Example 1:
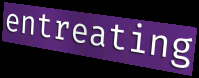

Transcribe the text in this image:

entreating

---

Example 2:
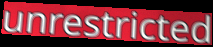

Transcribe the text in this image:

unrestricted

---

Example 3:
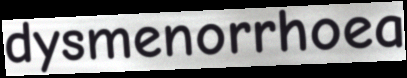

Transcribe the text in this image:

dysmenorrhoea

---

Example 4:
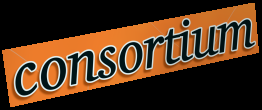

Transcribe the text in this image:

consortium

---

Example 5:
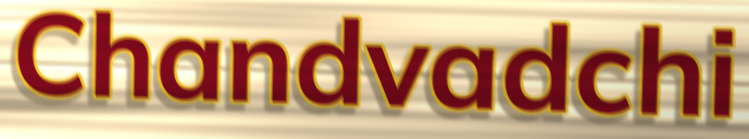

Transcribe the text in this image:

Chandvadchi